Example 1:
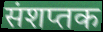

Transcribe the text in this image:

संशप्तक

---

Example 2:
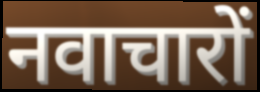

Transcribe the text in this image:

नवाचारों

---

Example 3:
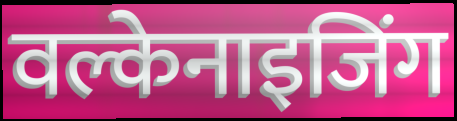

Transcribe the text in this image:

वल्केनाइजिंग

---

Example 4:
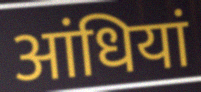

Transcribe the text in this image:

आंधियां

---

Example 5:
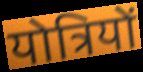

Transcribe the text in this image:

योत्रियों